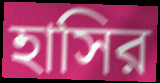
হাসির